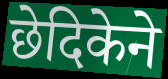
छेदिकेने